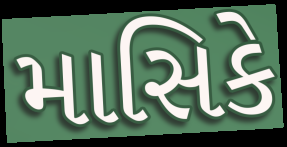
માસિકે